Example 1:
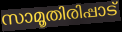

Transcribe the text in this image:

സാമൂതിരിപ്പാട്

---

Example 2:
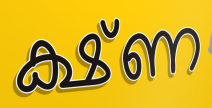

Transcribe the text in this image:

ക്ഷ്ണ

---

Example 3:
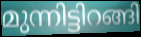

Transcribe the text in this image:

മുന്നിട്ടിറങ്ങി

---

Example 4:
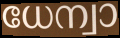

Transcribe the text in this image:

ധേന്വാ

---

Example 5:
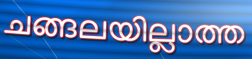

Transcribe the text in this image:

ചങ്ങലയില്ലാത്ത